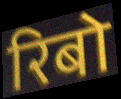
रिबो